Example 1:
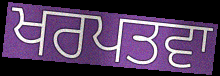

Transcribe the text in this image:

ਖਰਪਤਵਾ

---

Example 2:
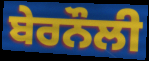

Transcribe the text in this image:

ਬੇਰਨੌਲੀ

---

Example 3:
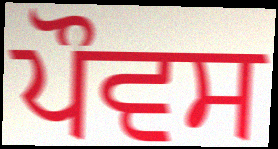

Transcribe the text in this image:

ਪੌਵਸ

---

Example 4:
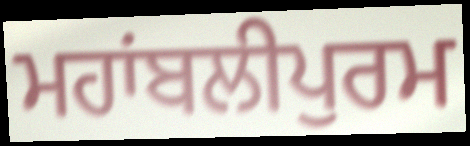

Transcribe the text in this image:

ਮਹਾਂਬਲੀਪੁਰਮ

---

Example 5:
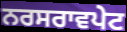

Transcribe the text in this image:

ਨਰਸਰਾਵਪੇਟ